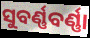
ସୁବର୍ଣ୍ଣବର୍ଣ୍ଣା